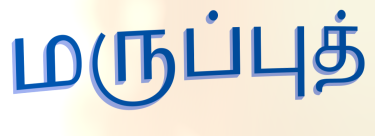
மருப்புத்